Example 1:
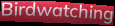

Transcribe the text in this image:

Birdwatching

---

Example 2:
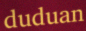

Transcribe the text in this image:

duduan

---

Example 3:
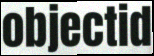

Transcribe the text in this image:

objectid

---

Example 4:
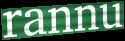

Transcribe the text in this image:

rannu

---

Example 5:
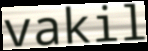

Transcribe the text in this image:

vakil